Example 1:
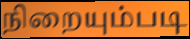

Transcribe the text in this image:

நிறையும்படி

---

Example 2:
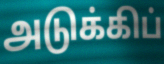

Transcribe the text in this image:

அடுக்கிப்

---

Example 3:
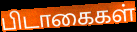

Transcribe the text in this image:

பிடாகைகள்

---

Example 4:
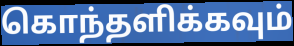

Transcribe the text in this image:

கொந்தளிக்கவும்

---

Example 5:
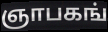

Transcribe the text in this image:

ஞாபகங்